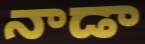
నాడా